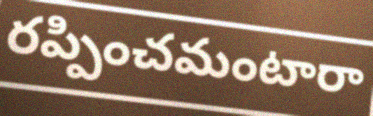
రప్పించమంటారా